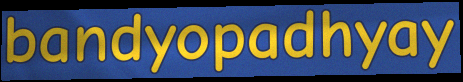
bandyopadhyay